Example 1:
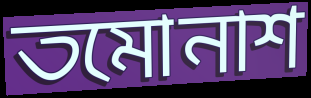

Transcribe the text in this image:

তমোনাশ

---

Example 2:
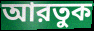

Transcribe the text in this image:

আরতুক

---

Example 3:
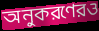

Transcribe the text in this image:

অনুকরণেরও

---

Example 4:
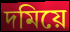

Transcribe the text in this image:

দমিয়ে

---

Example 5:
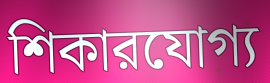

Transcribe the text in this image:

শিকারযোগ্য